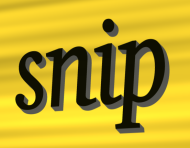
snip